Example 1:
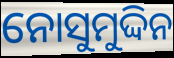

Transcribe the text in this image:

ନୋସୁମୁଦ୍ଦିନ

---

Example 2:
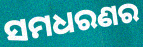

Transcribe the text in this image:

ସମଧରଣର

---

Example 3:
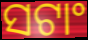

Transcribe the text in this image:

ସଟାଂ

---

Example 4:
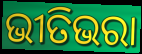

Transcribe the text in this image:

ଭୀତିଭରା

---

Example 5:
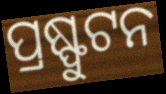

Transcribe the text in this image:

ପ୍ରଷ୍ଫୁଟନ